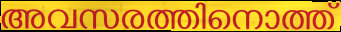
അവസരത്തിനൊത്ത്